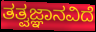
ತತ್ವಜ್ಞಾನವಿದೆ